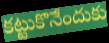
కట్టుకొనేందుకు